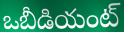
ఒబీడియంట్